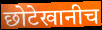
छोटेखानीच